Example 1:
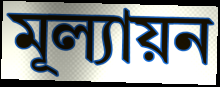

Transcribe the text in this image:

মূল্যায়ন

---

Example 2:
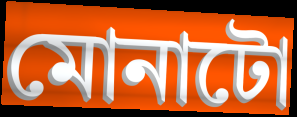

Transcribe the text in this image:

মোনাটো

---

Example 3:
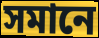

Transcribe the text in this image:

সমানে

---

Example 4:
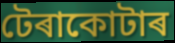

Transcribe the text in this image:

টেৰাকোটাৰ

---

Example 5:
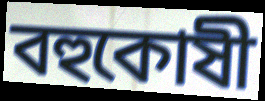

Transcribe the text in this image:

বহুকোষী